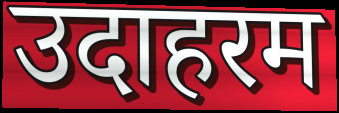
उदाहरम